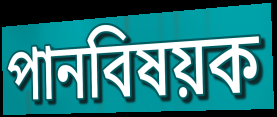
পানবিষয়ক